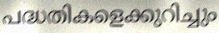
പദ്ധതികളെക്കുറിച്ചും